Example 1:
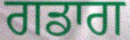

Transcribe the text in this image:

ਗਡਾਗ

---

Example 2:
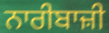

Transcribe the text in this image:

ਨਾਰੀਬਾਜ਼ੀ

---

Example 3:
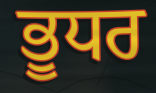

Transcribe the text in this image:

ਭੂਧਰ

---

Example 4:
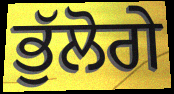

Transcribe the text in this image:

ਭੁੱਲੋਗੇ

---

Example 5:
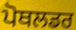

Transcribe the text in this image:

ਪੋਥਲਡਰ